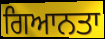
ਗਿਆਨਤਾ